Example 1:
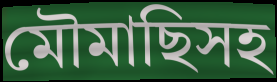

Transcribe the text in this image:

মৌমাছিসহ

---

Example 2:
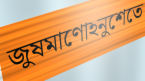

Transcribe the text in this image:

জুষমাণোঽনুশেতে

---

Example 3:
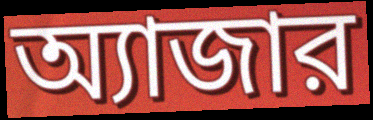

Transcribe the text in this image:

অ্যাজার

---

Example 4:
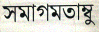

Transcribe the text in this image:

সমাগমতাম্বু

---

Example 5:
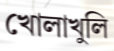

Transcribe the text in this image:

খোলাখুলি